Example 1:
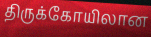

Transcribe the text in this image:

திருக்கோயிலான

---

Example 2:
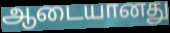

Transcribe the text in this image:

ஆடையானது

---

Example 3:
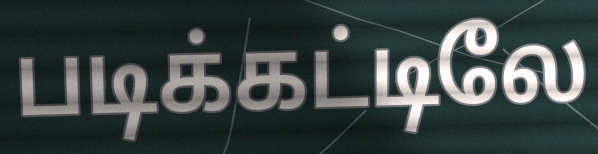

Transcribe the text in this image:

படிக்கட்டிலே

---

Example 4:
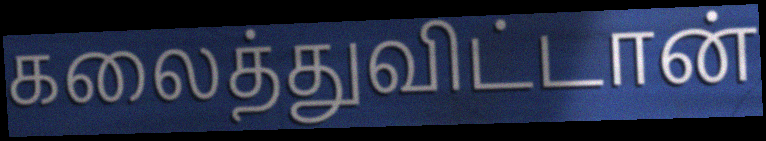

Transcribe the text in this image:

கலைத்துவிட்டான்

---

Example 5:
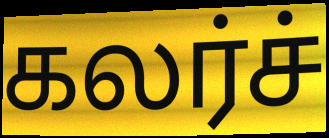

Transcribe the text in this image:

கலர்ச்